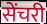
सेंचरी